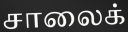
சாலைக்